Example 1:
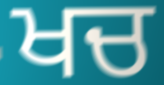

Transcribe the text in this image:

ਖਚ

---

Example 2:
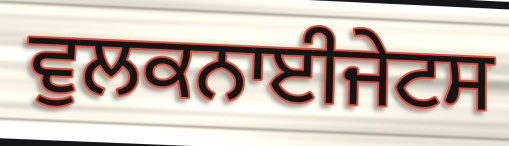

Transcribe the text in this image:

ਵੁਲਕਨਾਈਜੇਟਸ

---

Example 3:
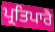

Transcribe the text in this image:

ਪ੍ਰਤਿਪਾਰੈ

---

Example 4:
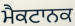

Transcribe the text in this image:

ਮੈਕਟਾਨਕ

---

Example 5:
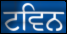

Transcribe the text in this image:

ਟਵਿਨ